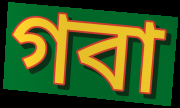
গবা